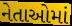
નેતાઓમાં